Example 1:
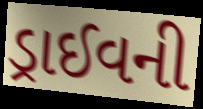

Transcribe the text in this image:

ડ્રાઈવની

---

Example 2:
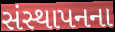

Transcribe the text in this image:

સંસ્થાપનના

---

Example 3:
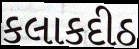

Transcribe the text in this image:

કલાકદીઠ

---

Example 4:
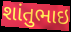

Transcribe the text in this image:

શાંતુભાઇ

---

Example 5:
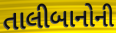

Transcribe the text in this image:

તાલીબાનોની